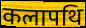
कलापथि